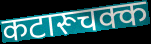
कटारूचक्क